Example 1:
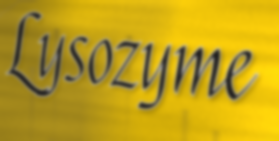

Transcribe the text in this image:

Lysozyme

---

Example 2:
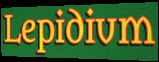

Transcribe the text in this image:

Lepidium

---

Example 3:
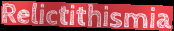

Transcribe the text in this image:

Relictithismia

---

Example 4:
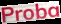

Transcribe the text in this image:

Proba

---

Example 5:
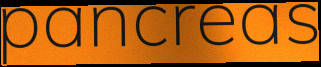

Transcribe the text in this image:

pancreas